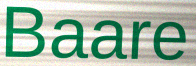
Baare